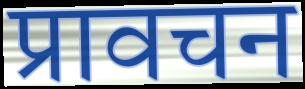
प्रावचन